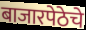
बाजारपेठेचे